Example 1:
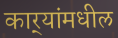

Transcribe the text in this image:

कार्यांमधील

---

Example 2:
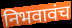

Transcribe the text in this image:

निभवावंच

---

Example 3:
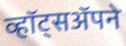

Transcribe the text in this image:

व्हॉट्सॲपने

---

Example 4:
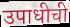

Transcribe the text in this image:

उपाधीची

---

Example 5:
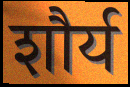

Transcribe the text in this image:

शौर्य